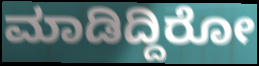
ಮಾಡಿದ್ದಿರೋ